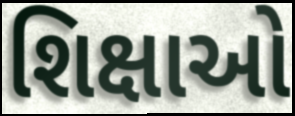
શિક્ષાઓ